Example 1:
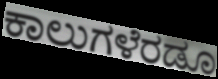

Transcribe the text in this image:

ಕಾಲುಗಳೆರಡೂ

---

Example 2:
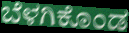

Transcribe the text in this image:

ಬೆಳಗಿಕೊಂಡ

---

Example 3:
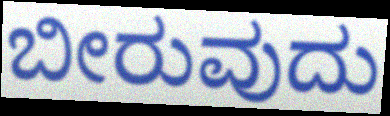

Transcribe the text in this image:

ಬೀರುವುದು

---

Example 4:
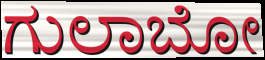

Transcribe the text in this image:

ಗುಲಾಬೋ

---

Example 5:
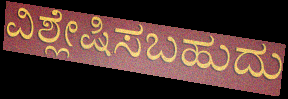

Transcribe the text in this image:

ವಿಶ್ಲೇಷಿಸಬಹುದು